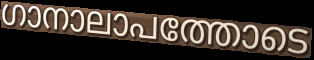
ഗാനാലാപത്തോടെ